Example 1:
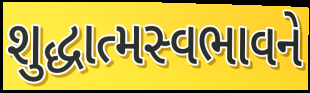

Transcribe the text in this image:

શુદ્ધાત્મસ્વભાવને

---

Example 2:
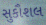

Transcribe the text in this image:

સુકૌશલ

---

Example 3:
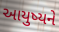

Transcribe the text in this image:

આયુષ્યને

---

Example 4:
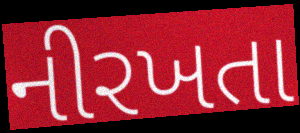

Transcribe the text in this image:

નીરખતા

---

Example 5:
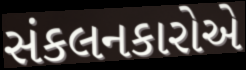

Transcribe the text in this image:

સંકલનકારોએ